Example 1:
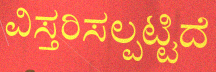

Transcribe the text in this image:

ವಿಸ್ತರಿಸಲ್ಪಟ್ಟಿದೆ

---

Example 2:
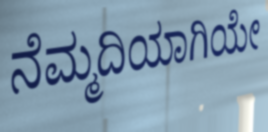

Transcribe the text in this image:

ನೆಮ್ಮದಿಯಾಗಿಯೇ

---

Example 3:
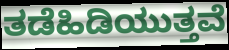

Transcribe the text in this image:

ತಡೆಹಿಡಿಯುತ್ತವೆ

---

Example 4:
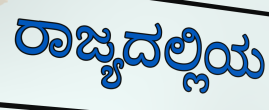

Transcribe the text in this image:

ರಾಜ್ಯದಲ್ಲಿಯ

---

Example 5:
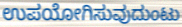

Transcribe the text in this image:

ಉಪಯೋಗಿಸುವುದುಂಟು